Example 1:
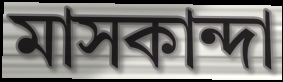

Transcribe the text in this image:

মাসকান্দা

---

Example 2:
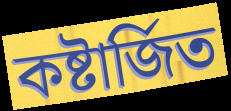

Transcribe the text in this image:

কষ্টার্জিত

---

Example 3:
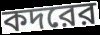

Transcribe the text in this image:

কদরের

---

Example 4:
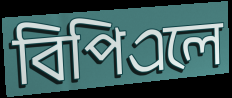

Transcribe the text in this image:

বিপিএলে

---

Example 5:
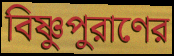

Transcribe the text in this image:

বিষ্ণুপুরাণের